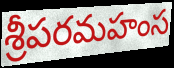
శ్రీపరమహంస